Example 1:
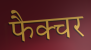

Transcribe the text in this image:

फैक्चर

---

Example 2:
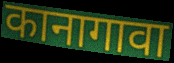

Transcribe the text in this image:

कानागावा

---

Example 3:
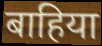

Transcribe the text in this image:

बाहिया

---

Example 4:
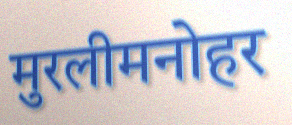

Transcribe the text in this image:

मुरलीमनोहर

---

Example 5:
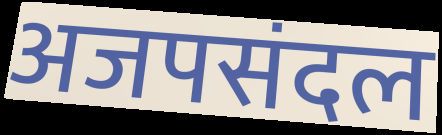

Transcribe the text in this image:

अजपसंदल